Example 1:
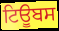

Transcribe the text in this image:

ਟਿਊਬਸ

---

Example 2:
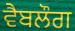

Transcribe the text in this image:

ਵੈਬਲੌਗ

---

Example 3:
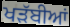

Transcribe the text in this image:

ਖੜੱਬੀਆਂ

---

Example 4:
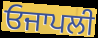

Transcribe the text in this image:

ਓਜਾਪਲੀ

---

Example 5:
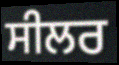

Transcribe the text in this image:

ਸੀਲਰ